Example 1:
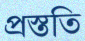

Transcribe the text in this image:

প্রস্ততি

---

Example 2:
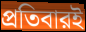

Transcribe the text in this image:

প্রতিবারই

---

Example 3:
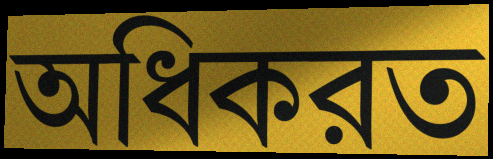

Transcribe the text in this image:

অধিকরত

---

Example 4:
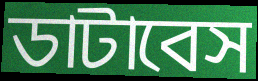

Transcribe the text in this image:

ডাটাবেস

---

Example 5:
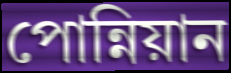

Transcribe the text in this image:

পোন্নিয়ান